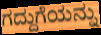
ಗದ್ದುಗೆಯನ್ನು